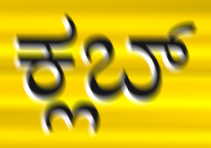
ಕ್ಲಬ್